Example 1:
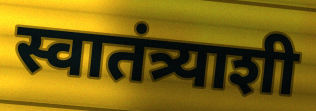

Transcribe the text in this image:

स्वातंत्र्याशी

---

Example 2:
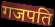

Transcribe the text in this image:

गजपति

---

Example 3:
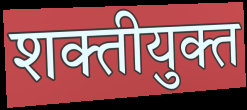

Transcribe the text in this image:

शक्तीयुक्त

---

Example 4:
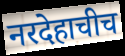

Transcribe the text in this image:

नरदेहाचीच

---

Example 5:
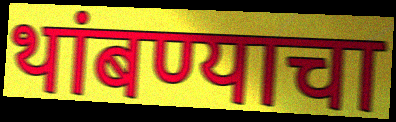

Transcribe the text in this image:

थांबण्याचा